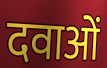
दवाओं